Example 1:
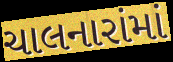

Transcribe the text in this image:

ચાલનારાંમાં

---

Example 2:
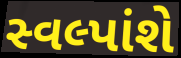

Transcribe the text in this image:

સ્વલ્પાંશે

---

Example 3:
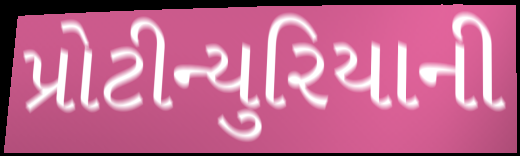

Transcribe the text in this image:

પ્રોટીન્યુરિયાની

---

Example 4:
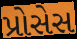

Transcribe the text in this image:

પ્રોસેસ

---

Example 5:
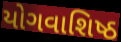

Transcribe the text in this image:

યોગવાશિષ્ઠ